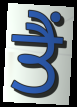
ਤੈਂ